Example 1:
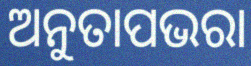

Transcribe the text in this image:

ଅନୁତାପଭରା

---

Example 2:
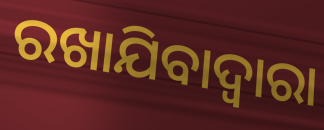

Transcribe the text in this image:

ରଖାଯିବାଦ୍ଵାରା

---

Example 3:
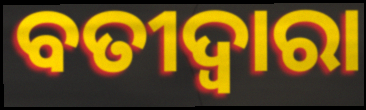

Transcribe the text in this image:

ବତୀଦ୍ୱାରା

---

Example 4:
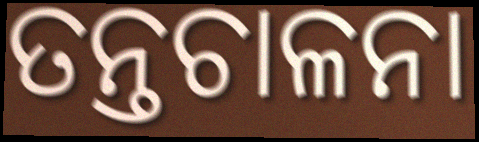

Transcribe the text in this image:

ତନ୍ତଚାଳନା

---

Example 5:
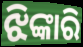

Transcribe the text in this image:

ଝିଙ୍କାରି